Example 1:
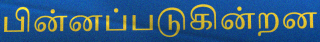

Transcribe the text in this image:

பின்னப்படுகின்றன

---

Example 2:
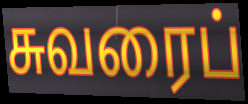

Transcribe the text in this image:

சுவரைப்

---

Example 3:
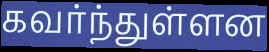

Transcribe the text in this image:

கவர்ந்துள்ளன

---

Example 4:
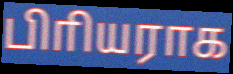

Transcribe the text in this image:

பிரியராக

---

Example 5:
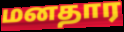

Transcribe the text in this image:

மனதார